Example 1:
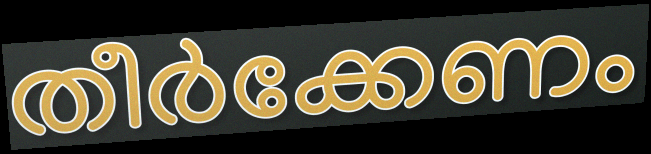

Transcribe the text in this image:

തീർക്കേണം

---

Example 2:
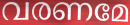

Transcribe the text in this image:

വരണമേ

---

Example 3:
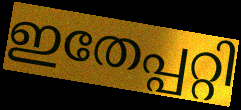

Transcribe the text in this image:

ഇതേപ്പറ്റി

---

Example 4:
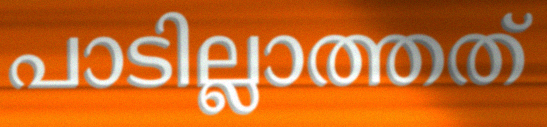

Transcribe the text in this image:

പാടില്ലാത്തത്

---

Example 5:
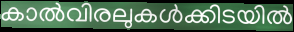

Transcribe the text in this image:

കാൽവിരലുകൾക്കിടയിൽ